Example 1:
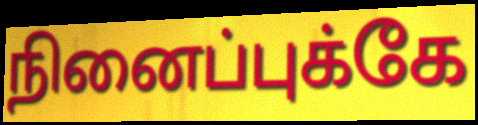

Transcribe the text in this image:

நினைப்புக்கே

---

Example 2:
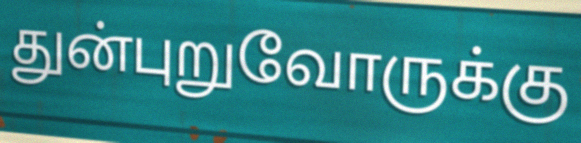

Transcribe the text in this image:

துன்புறுவோருக்கு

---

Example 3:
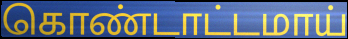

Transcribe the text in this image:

கொண்டாட்டமாய்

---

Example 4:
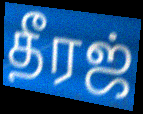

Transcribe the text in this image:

தீரஜ்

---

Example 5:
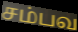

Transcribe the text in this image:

சம்பவ